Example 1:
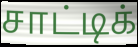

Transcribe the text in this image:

சாட்டிக்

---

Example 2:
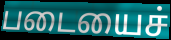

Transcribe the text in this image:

படையைச்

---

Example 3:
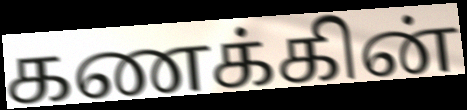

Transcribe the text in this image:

கணக்கின்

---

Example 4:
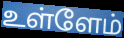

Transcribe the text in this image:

உள்ளேம்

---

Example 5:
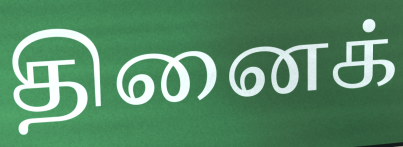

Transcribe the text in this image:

தினைக்